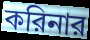
করিনার